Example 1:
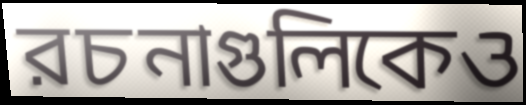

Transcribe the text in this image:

রচনাগুলিকেও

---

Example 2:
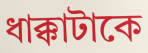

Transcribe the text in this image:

ধাক্কাটাকে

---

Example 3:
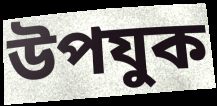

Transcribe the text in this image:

উপযুক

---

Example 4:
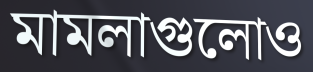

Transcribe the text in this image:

মামলাগুলোও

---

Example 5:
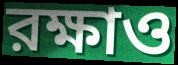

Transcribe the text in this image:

রক্ষাও